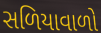
સળિયાવાળો